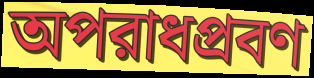
অপরাধপ্রবণ